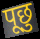
पूछु